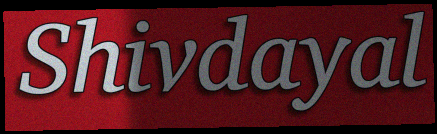
Shivdayal